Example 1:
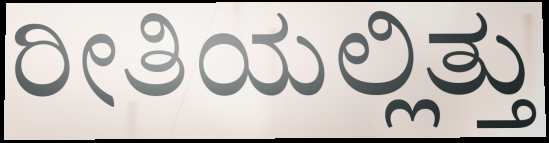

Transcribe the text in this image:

ರೀತಿಯಲ್ಲಿತ್ತು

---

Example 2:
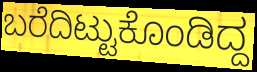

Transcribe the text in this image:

ಬರೆದಿಟ್ಟುಕೊಂಡಿದ್ದ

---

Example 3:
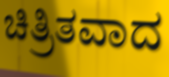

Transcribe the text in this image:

ಚಿತ್ರಿತವಾದ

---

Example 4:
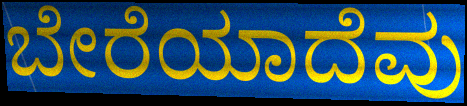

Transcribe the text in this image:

ಬೇರೆಯಾದೆವು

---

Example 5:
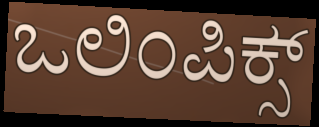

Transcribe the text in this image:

ಒಲಿಂಪಿಕ್ಸ್